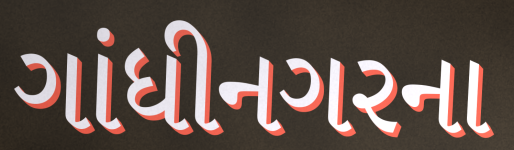
ગાંધીનગરના